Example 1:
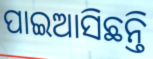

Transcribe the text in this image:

ପାଇଆସିଛନ୍ତି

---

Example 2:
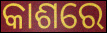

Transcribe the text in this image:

କାଶରେ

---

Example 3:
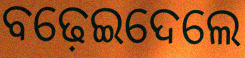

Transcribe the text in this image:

ବଢ଼େଇଦେଲେ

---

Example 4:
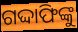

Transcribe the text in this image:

ଗଦ୍ଦାଫିଙ୍କୁ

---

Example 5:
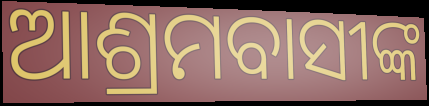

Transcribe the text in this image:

ଆଶ୍ରମବାସୀଙ୍କ